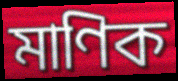
মাণিক